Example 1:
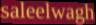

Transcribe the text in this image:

saleelwagh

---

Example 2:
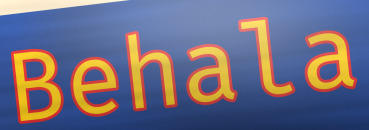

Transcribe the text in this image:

Behala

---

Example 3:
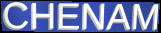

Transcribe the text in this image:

CHENAM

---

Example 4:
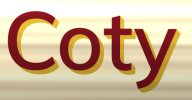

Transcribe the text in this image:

Coty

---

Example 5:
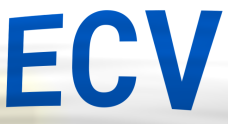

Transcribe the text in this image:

ECV